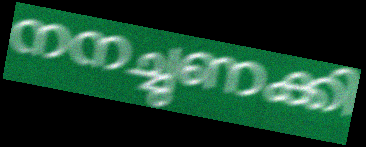
നനച്ചുണക്കി